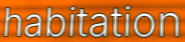
habitation